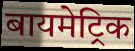
बायमेट्रिक